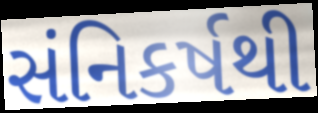
સંનિકર્ષથી